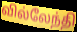
வில்லேந்தி